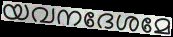
യവനദേശമേ